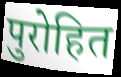
पुरोहित